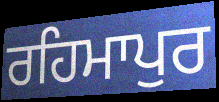
ਰਹਿਮਾਪੁਰ